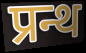
प्रन्थ